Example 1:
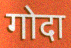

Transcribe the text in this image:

गोदा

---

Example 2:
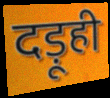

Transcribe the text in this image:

दड़ूही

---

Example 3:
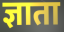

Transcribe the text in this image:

ज्ञाता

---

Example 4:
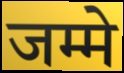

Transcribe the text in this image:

जम्मे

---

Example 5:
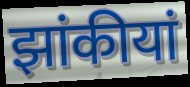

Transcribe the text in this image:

झांकीयां